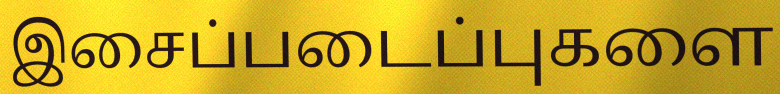
இசைப்படைப்புகளை